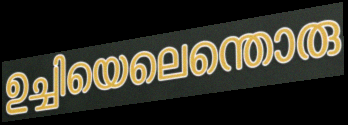
ഉച്ചിയെലെന്തൊരു